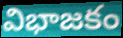
విభాజకం